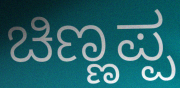
ಚಿಣ್ಣಪ್ಪ